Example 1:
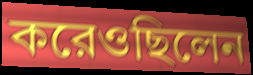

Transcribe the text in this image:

করেওছিলেন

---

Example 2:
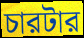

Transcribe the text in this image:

চারটার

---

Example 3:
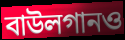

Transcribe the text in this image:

বাউলগানও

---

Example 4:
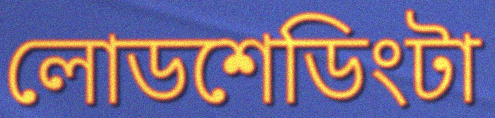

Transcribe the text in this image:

লোডশেডিংটা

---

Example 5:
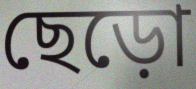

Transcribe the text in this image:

ছেড়ো